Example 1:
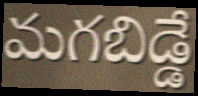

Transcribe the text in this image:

మగబిడ్డే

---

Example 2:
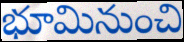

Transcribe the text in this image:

భూమినుంచి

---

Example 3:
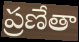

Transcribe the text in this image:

ప్రణేతా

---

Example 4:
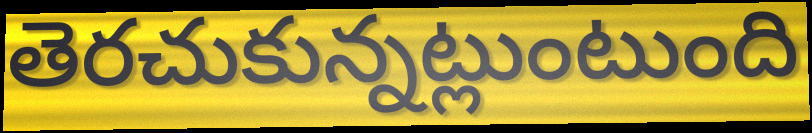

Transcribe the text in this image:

తెరచుకున్నట్లుంటుంది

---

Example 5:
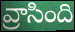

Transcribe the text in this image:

వ్రాసింది